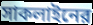
সাকলাইনের